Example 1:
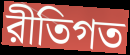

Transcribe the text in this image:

রীতিগত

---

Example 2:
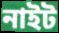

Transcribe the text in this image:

নাইট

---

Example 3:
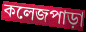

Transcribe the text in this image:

কলেজপাড়া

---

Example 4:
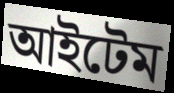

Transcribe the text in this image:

আইটেম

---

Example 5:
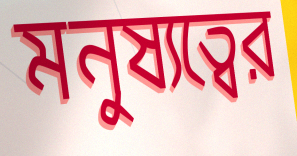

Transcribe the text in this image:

মনুষ্যত্বের